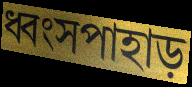
ধ্বংসপাহাড়